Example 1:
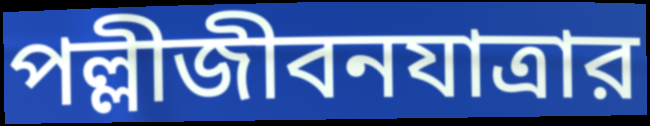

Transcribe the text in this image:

পল্লীজীবনযাত্রার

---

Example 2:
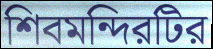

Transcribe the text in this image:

শিবমন্দিরটির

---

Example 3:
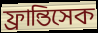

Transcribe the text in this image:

ফ্রান্তিসেক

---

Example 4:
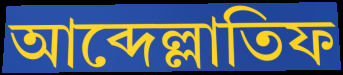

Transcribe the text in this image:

আব্দেল্লাতিফ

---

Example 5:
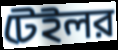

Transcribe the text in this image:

টেইলর